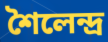
শৈলেন্দ্ৰ